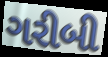
ગરીબી